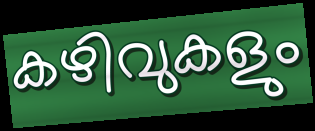
കഴിവുകളും